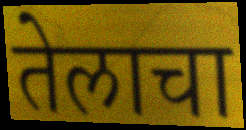
तेलाचा